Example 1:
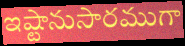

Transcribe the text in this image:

ఇష్టానుసారముగా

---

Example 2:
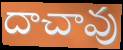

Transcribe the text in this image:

దాచావు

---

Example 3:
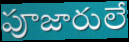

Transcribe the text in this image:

పూజారులే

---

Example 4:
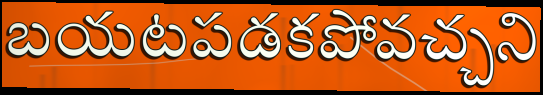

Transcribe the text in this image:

బయటపడకపోవచ్చని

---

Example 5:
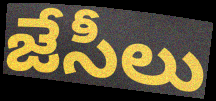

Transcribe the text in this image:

జేసీలు